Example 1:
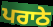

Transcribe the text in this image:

ਪਰਾਠੇ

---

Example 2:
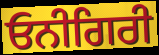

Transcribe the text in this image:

ਓਨੀਗਿਰੀ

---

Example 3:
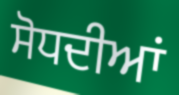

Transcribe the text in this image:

ਸੋਧਦੀਆਂ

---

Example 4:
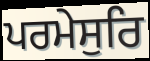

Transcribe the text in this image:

ਪਰਮੇਸੁਰਿ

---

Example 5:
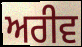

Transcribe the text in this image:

ਅਰੀਵ